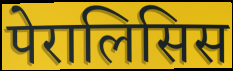
पेरालिसिस